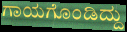
ಗಾಯಗೊಂಡಿದ್ದು